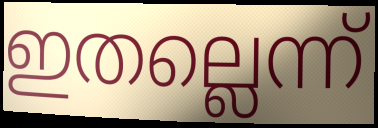
ഇതല്ലെന്ന്